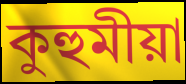
কুহুমীয়া